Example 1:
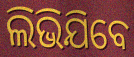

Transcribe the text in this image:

ଲିଭିଯିବେ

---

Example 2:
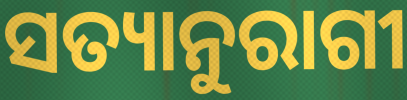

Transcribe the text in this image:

ସତ୍ୟାନୁରାଗୀ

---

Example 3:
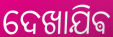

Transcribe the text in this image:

ଦେଖାଯିଵ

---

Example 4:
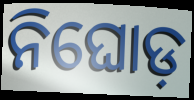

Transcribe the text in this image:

ନିଘୋଡ଼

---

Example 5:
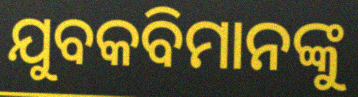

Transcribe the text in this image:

ଯୁବକବିମାନଙ୍କୁ